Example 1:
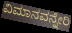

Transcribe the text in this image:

ವಿಮಾನವನ್ನೇರಿ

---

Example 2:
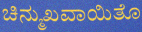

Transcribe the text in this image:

ಚಿನ್ಮುಖವಾಯಿತೊ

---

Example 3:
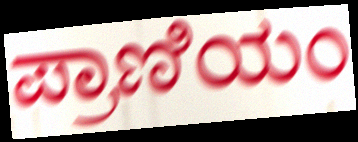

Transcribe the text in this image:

ಪ್ರಾಣಿಯಂ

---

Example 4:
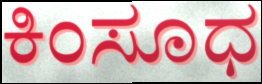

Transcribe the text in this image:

ಕಿಂಸೂಧ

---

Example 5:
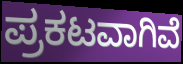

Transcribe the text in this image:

ಪ್ರಕಟವಾಗಿವೆ